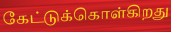
கேட்டுக்கொள்கிறது